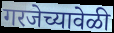
गरजेच्यावेळी